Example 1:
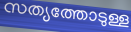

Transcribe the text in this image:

സത്യത്തോടുള്ള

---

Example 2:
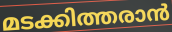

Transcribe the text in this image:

മടക്കിത്തരാൻ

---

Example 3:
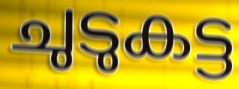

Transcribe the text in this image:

ചുടുകട്ട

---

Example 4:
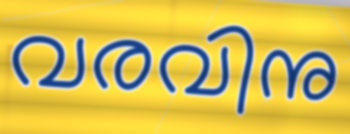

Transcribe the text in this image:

വരവിനു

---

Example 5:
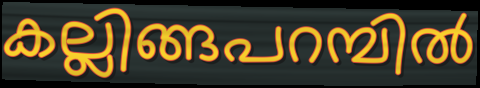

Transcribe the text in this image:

കല്ലിങ്ങപറമ്പിൽ